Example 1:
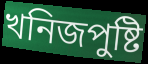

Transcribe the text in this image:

খনিজপুষ্টি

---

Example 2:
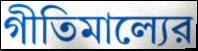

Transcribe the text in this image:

গীতিমাল্যের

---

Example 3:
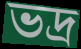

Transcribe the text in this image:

ভদ্র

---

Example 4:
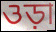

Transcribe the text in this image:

ওড়া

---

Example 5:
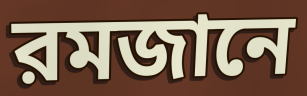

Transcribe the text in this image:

রমজানে